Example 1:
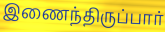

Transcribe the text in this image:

இணைந்திருப்பார்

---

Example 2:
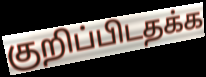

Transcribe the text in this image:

குறிப்பிடதக்க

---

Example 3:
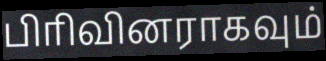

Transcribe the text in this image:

பிரிவினராகவும்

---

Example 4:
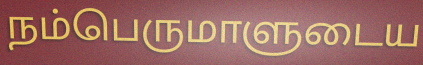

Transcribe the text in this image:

நம்பெருமாளுடைய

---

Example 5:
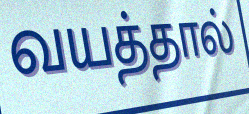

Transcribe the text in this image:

வயத்தால்